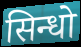
सिन्धो